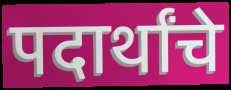
पदार्थांचे